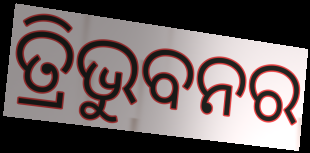
ତ୍ରିଭୁବନର